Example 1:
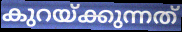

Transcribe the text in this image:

കുറയ്ക്കുന്നത്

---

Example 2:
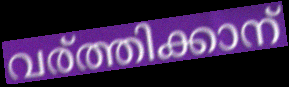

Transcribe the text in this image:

വര്ത്തിക്കാന്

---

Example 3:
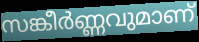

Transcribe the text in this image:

സങ്കീർണ്ണവുമാണ്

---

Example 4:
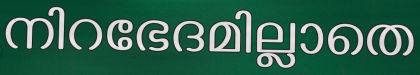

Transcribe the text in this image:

നിറഭേദമില്ലാതെ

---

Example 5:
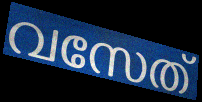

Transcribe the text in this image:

വസേത്